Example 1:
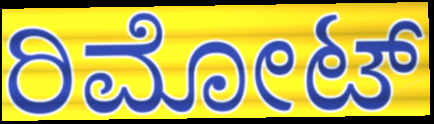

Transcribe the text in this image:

ರಿಮೋಟ್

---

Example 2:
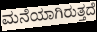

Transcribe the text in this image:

ಮನೆಯಾಗಿರುತ್ತದೆ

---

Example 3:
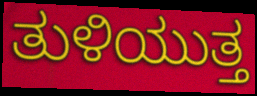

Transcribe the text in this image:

ತುಳಿಯುತ್ತ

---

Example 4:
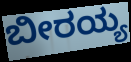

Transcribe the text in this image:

ಬೀರಯ್ಯ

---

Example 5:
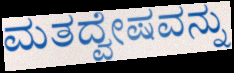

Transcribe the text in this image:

ಮತದ್ವೇಷವನ್ನು